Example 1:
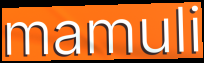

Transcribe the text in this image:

mamuli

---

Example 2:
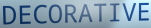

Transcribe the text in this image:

DECORATIVE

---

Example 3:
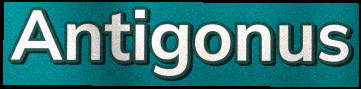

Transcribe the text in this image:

Antigonus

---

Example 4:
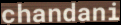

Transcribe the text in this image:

chandani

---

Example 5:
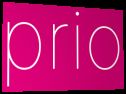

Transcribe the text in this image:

prio